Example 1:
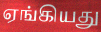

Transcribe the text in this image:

ஏங்கியது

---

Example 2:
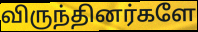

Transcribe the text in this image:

விருந்தினர்களே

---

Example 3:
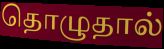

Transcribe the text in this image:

தொழுதால்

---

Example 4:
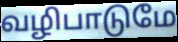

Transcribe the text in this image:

வழிபாடுமே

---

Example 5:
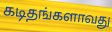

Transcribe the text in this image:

கடிதங்களாவது